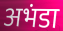
अभंडा